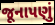
જૂનાપણું